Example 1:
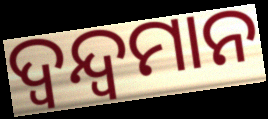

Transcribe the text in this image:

ଦ୍ଵନ୍ଦ୍ଵମାନ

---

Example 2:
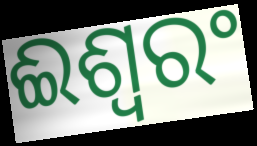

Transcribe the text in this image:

ଈଶ୍ଵରଂ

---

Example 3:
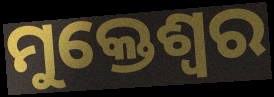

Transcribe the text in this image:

ମୁକ୍ତେଶ୍ଵର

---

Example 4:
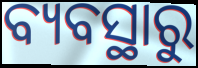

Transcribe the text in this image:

ବ୍ୟବସ୍ଥାରୁ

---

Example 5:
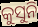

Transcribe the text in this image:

କୁସୁନି